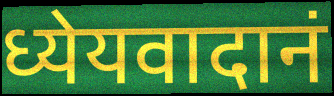
ध्येयवादानं